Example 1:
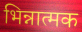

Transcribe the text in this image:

भिन्नात्मक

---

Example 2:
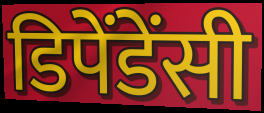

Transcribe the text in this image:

डिपेंडेंसी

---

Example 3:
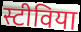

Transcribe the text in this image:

स्‍टीविया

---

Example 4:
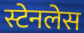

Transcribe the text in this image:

स्टेनलेस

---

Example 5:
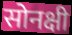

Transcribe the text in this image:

सोनक्षी